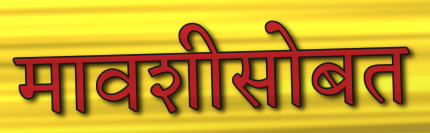
मावशीसोबत